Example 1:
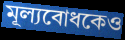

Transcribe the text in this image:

মূল্যবোধকেও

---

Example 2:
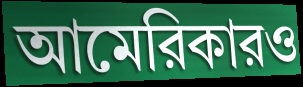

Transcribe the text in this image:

আমেরিকারও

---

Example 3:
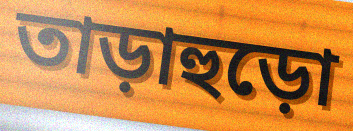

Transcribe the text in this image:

তাড়াহুড়ো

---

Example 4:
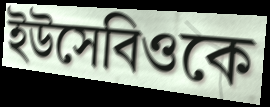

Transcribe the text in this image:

ইউসেবিওকে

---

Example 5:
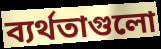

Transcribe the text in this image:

ব্যর্থতাগুলো